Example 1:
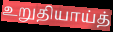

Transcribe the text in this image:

உறுதியாய்த்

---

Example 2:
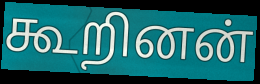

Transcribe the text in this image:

கூறினன்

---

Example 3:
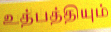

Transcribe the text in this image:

உத்பத்தியும்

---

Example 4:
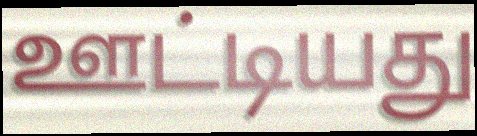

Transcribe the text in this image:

ஊட்டியது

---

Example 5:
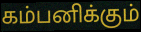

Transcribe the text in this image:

கம்பனிக்கும்